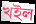
খইল